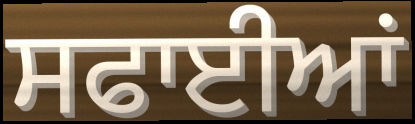
ਸਫਾਈਆਂ